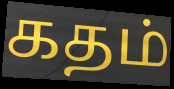
கதம்